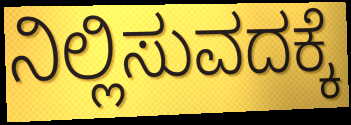
ನಿಲ್ಲಿಸುವದಕ್ಕೆ